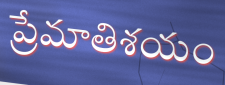
ప్రేమాతిశయం